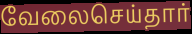
வேலைசெய்தார்